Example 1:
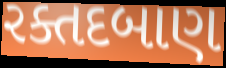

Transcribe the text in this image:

રક્તદબાણ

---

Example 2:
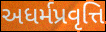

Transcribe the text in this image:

અધર્મપ્રવૃત્તિ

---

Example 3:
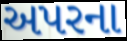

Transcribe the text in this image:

અપરના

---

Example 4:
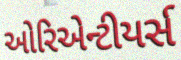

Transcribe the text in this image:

ઓરિએન્ટીયર્સ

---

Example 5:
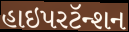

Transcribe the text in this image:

હાઇપરટૅન્શન